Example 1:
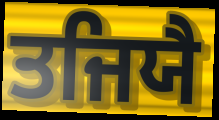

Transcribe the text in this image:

ਤਜਿਯੈ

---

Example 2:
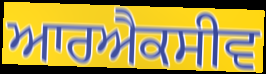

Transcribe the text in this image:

ਆਰਐਕਸੀਵ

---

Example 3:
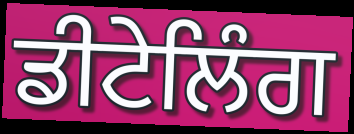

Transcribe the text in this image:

ਡੀਟੇਲਿੰਗ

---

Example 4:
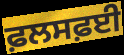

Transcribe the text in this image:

ਫ਼ਲਸਫ਼ਈ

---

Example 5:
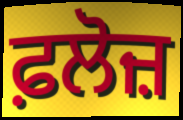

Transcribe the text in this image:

ਫ਼ਲੋਜ਼